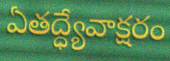
ఏతద్ధ్యేవాక్షరం